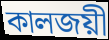
কালজয়ী